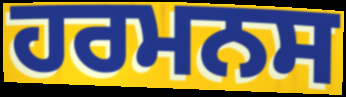
ਹਰਮਨਸ